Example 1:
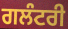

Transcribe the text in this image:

ਗਲੰਟਰੀ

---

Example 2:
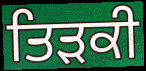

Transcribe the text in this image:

ਤਿੜਕੀ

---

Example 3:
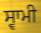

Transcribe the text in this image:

ਸ੍ਵਾਮੀ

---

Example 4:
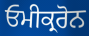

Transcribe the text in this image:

ਓਮੀਕ੍ਰਰੋਨ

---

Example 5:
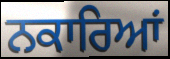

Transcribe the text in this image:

ਨਕਾਰਿਆਂ